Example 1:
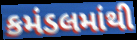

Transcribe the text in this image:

કમંડલમાંથી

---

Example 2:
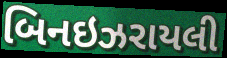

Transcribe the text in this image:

બિનઇઝરાયલી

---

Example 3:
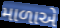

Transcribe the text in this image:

માળાએ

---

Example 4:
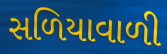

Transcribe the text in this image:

સળિયાવાળી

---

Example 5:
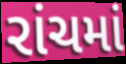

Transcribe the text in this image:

રાંચમાં